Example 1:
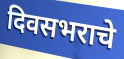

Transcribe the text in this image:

दिवसभराचे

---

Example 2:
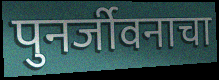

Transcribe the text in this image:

पुनर्जीवनाचा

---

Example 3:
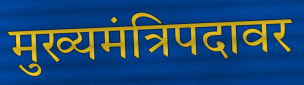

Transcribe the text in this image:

मुख्यमंत्रिपदावर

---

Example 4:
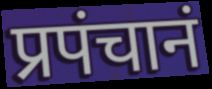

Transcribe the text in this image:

प्रपंचानं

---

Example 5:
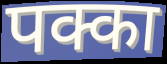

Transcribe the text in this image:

पक्का